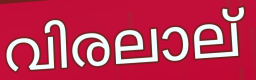
വിരലാല്